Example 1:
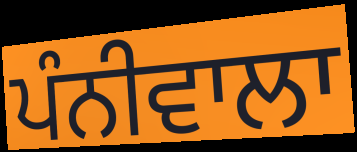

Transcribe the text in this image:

ਪੰਨੀਵਾਲਾ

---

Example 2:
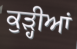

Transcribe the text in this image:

ਕੁੜ੍ਹੀਆਂ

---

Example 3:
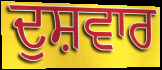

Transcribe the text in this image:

ਦੁਸ਼ਵਾਰ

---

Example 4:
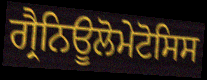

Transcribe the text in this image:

ਗ੍ਰੈਨਿਊਲੋਮੇਟੋਸਿਸ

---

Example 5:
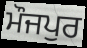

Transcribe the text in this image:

ਮੌਜਪੁਰ